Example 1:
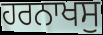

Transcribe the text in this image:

ਹਰਨਾਖਸੁ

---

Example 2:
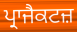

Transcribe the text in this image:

ਪ੍ਰਾਜੈਕਟਜ਼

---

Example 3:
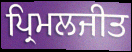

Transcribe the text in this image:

ਪ੍ਰਿਮਲਜੀਤ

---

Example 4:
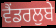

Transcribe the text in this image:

ਵੈਂਡਰਲੁਬੇ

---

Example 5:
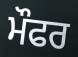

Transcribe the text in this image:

ਮੌਫਰ